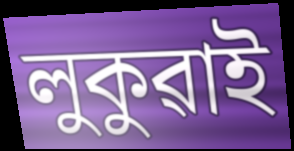
লুকুৱাই